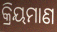
କ୍ରିୟମାଣ